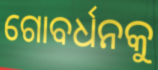
ଗୋବର୍ଧନକୁ